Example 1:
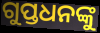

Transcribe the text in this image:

ଗୁପ୍ତଧନଙ୍କୁ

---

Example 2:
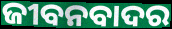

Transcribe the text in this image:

ଜୀବନବାଦର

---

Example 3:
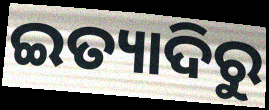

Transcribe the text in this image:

ଇତ୍ୟାଦିରୁ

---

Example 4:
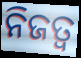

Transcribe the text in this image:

ନିଜତ୍ବ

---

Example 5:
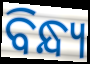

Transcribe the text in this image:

ବିନ୍ଧ୍ୟ